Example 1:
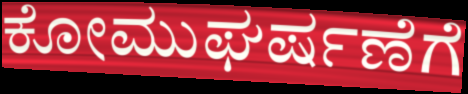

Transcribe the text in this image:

ಕೋಮುಘರ್ಷಣೆಗೆ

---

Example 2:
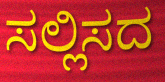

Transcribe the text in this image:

ಸಲ್ಲಿಸದ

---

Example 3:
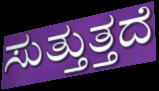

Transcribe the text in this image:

ಸುತ್ತುತ್ತದೆ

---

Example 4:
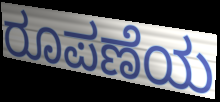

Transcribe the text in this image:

ರೂಪಣೆಯ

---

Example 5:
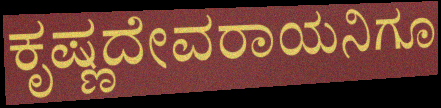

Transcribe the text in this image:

ಕೃಷ್ಣದೇವರಾಯನಿಗೂ